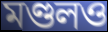
মণ্ডলও